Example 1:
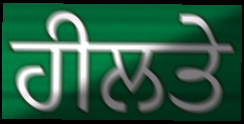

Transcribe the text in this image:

ਹੀਲਤੇ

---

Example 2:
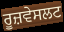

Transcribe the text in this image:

ਰੂਜ਼ਵੇਸਲਟ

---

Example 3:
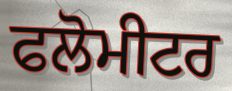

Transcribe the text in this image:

ਫਲੋਮੀਟਰ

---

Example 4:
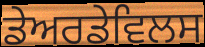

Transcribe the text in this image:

ਡੇਅਰਡੇਵਿਲਸ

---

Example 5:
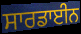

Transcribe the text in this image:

ਸਾਰਡਾਈਨ